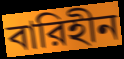
বারিহীন